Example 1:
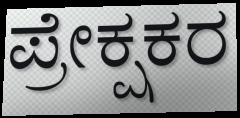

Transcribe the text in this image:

ಪ್ರೇಕ್ಷಕರ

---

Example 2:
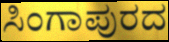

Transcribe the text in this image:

ಸಿಂಗಾಪುರದ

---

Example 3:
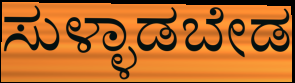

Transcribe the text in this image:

ಸುಳ್ಳಾಡಬೇಡ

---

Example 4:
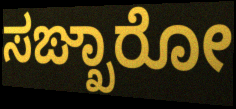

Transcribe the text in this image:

ಸಙ್ಖಾರೋ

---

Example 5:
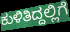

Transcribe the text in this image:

ಕುಳಿತಿದ್ದಲ್ಲಿಗೆ